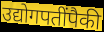
उद्योगपतींपैकी